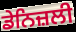
ਡੇਨਿਜ਼ਲੀ